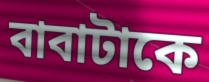
বাবাটাকে